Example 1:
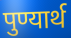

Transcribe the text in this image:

पुण्यार्थ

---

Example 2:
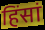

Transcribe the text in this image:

हिंसां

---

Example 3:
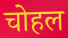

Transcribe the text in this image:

चोहल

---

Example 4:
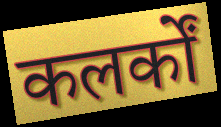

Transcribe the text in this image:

कलर्कों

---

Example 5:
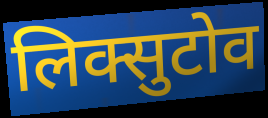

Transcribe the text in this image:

लिक्सुटोव